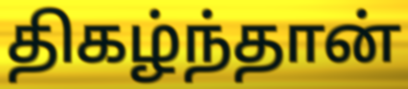
திகழ்ந்தான்